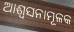
ଆଶ୍ୱସନାମୂଳକ